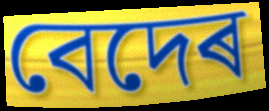
বেদেৰ